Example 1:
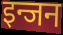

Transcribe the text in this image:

इन्जन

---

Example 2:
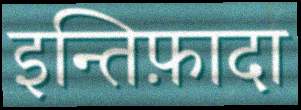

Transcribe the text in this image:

इन्तिफ़ादा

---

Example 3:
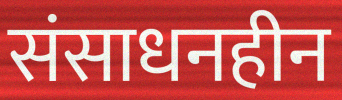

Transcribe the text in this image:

संसाधनहीन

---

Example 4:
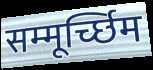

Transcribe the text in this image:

सम्मूर्च्छिम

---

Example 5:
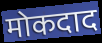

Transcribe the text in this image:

मोकदाद